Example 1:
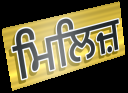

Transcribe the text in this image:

ਮਿਲਿਜ਼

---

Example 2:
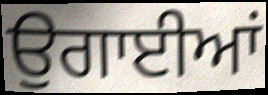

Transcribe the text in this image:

ਉਗਾਈਆਂ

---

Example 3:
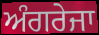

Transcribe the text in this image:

ਅੰਗਰੇਜਾ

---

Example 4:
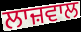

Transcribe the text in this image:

ਲਾਜ਼ਵਾਲ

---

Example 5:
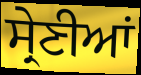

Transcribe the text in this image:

ਸ੍ਰੇਣੀਆਂ